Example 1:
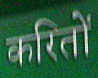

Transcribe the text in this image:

करितों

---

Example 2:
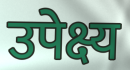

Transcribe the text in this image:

उपेक्ष्य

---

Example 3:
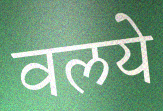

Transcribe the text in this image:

वलये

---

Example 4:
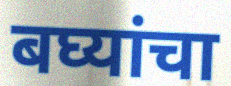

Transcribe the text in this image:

बघ्यांचा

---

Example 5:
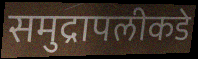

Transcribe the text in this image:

समुद्रापलीकडे